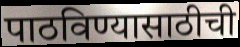
पाठविण्यासाठीची